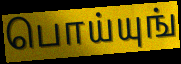
பொய்யுங்